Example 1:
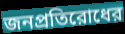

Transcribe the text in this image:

জনপ্রতিরোধের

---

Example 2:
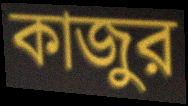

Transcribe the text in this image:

কাজুর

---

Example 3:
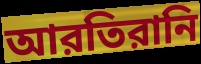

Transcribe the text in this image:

আরতিরানি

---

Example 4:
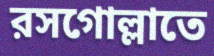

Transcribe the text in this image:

রসগোল্লাতে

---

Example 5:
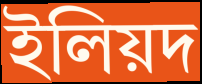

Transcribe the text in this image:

ইলিয়দ